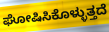
ಘೋಷಿಸಿಕೊಳ್ಳುತ್ತದೆ